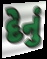
દેનું